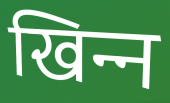
खिन्‍न